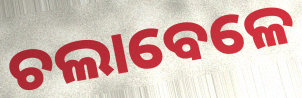
ଚଲାବେଳେ